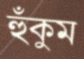
হুঁকুম